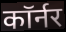
कॉर्नर